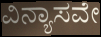
ವಿನ್ಯಾಸವೇ